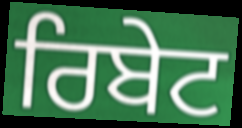
ਰਿਬੇਟ